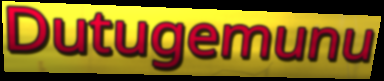
Dutugemunu